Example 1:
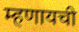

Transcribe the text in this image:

म्हणायची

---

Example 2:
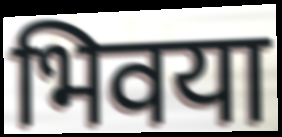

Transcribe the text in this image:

भिवया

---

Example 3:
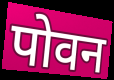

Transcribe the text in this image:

पोवन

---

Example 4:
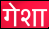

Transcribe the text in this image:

गेशा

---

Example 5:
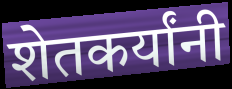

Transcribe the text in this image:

शेतकर्यांनी